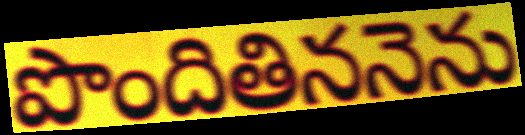
పొందితిననెను